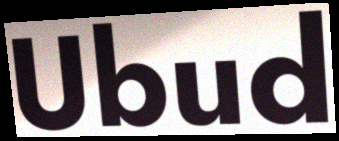
Ubud